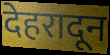
देहरादून